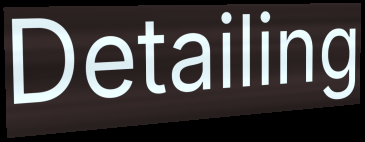
Detailing